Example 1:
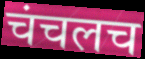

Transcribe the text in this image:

चंचलच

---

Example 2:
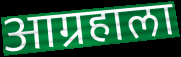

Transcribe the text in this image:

आग्रहाला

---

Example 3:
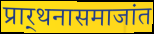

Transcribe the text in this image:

प्रार्थनासमाजांत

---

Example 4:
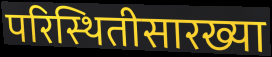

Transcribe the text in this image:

परिस्थितीसारख्या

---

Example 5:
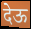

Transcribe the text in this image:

देऊ